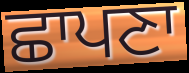
ਛਾਪਣਾ